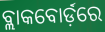
ବ୍ଲାକବୋର୍ଡ଼ରେ